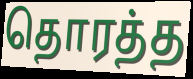
தொரத்த